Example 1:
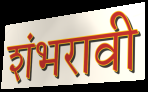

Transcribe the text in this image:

शंभरावी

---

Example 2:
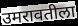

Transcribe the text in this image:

उमरावतीला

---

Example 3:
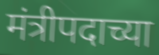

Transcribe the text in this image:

मंत्रीपदाच्या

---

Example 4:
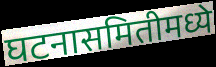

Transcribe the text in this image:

घटनासमितीमध्ये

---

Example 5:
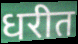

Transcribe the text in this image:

धरीत